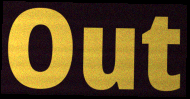
Out